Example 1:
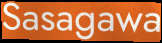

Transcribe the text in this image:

Sasagawa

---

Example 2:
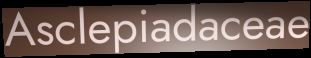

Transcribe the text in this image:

Asclepiadaceae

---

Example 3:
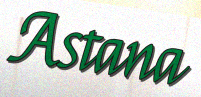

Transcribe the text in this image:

Astana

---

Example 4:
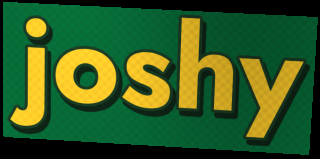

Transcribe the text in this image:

joshy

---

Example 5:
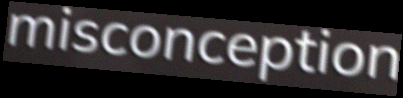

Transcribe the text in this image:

misconception